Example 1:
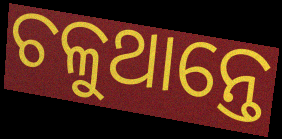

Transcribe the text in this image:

ଚଳୁଥାନ୍ତେ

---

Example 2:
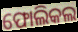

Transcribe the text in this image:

ଫୋଲିକଲ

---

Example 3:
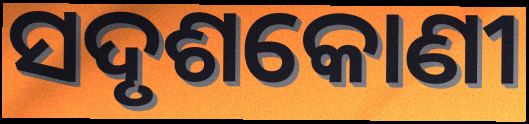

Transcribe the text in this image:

ସଦୃଶକୋଣୀ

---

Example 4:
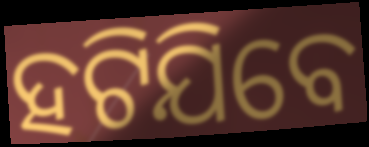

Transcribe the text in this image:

ହଟିଯିବେ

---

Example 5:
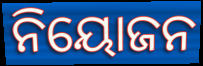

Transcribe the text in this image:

ନିୟୋଜନ